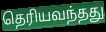
தெரியவந்தது